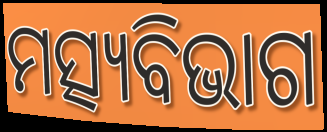
ମତ୍ସ୍ୟବିଭାଗ